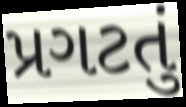
પ્રગટતું